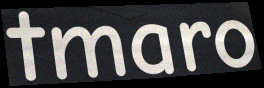
tmaro